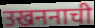
उखननाची